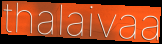
thalaivaa